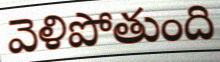
వెళిపోతుంది